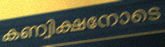
കണ്വിക്ഷനോടെ